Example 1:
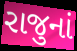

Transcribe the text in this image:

રાજુનાં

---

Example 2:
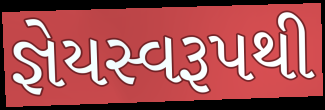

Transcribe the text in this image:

જ્ઞેયસ્વરૂપથી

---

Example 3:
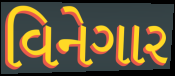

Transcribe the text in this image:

વિનેગાર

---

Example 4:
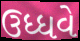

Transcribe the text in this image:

ઉધ્ધવે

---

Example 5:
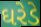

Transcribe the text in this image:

ઘરેડે